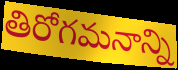
తిరోగమనాన్ని